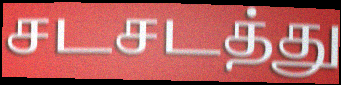
சடசடத்து